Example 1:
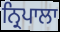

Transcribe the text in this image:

ਨ੍ਰਿਪਾਲਾ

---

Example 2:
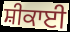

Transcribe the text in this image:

ਸ਼ੀਕਾਈ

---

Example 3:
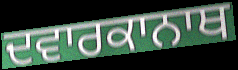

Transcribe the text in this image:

ਦਵਾਰਕਾਨਾਥ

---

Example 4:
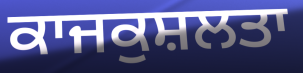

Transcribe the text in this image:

ਕਾਜਕੁਸ਼ਲਤਾ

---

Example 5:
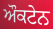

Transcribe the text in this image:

ਔਕਟੇਨ